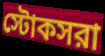
স্টোকসরা